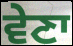
ਵੇਣਾ